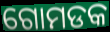
ଗୋମଡକ